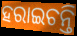
ହରାଇଚନ୍ତି